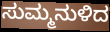
ಸುಮ್ಮನುಳಿದ